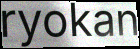
ryokan